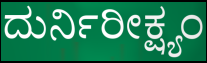
ದುರ್ನಿರೀಕ್ಷ್ಯಂ